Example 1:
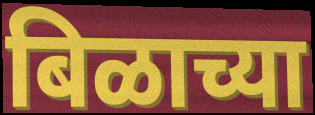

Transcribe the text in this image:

बिळाच्या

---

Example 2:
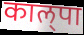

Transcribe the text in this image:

काल्पा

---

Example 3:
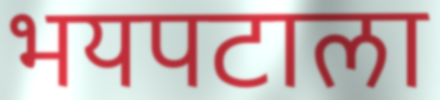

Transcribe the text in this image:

भयपटाला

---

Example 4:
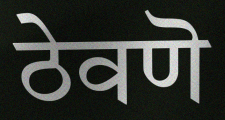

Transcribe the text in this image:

ठेवणॆ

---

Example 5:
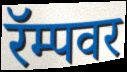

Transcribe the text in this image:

रॅम्पवर